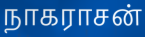
நாகராசன்